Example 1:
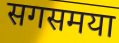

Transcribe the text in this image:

सगसमया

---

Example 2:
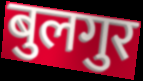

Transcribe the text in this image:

बुलगुर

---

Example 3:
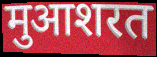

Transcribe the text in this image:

मुआशरत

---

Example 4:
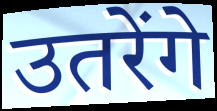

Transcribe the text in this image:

उतरेंगे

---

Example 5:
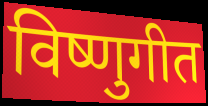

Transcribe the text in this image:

विष्णुगीत